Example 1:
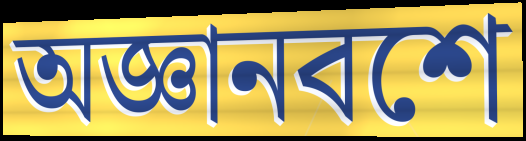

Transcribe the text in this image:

অজ্ঞানবশে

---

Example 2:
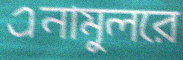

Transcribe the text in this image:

এনামুলরে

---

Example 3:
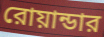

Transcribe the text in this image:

রোয়ান্ডার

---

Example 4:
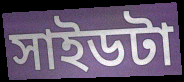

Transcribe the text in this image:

সাইডটা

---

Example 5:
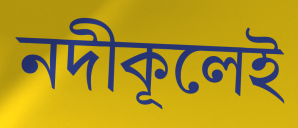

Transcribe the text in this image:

নদীকূলেই